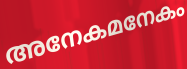
അനേകമനേകം